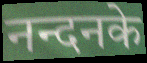
नन्दनके